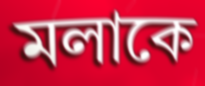
মলাকে